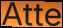
Atte